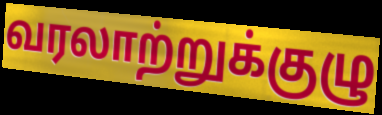
வரலாற்றுக்குழு